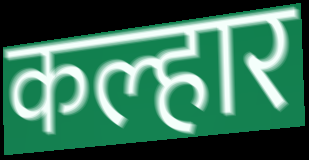
कल्हार